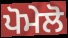
ਪੋਮੇਲੋ